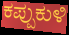
ಕಪ್ಪುಕುಳಿ